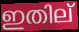
ഇതില്